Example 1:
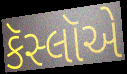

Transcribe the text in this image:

કૅસ્લૉએ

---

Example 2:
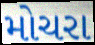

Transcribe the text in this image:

મોચરા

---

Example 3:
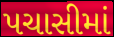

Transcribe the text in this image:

પચાસીમાં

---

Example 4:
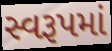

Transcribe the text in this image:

સ્વરૂપમાં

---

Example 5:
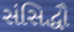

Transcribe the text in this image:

સંસિદ્ધૌ